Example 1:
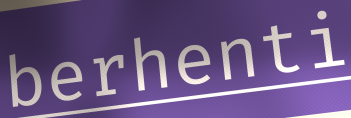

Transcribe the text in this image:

berhenti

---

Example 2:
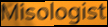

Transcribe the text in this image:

Misologist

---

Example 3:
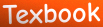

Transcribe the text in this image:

Texbook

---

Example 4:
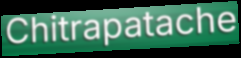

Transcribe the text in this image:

Chitrapatache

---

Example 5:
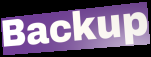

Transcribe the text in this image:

Backup